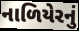
નાળિયેરનું